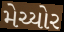
મેચ્યોર